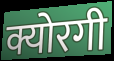
क्योरगी